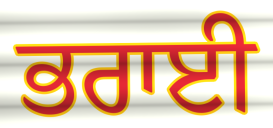
ਭਰਾਈ